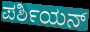
ಪರ್ಶಿಯನ್